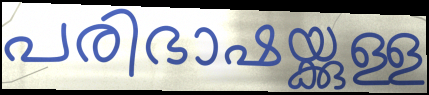
പരിഭാഷയ്ക്കുള്ള